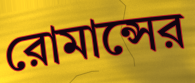
রোমান্সের